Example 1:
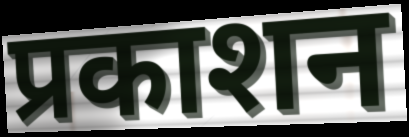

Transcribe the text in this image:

प्रकाशन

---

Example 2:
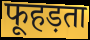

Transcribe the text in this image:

फूहड़ता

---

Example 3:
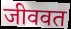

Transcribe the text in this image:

जीववत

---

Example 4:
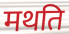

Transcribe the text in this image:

मथति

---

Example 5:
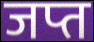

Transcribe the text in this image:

जप्त